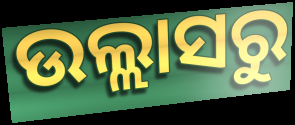
ଉଲ୍ଲାସରୁ